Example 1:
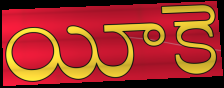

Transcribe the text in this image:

యీకె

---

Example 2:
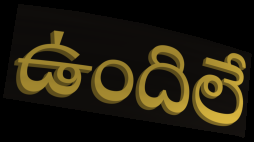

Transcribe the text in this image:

ఉందిలే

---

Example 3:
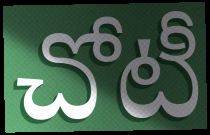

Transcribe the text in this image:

చోటీ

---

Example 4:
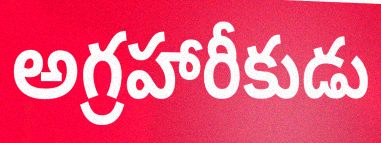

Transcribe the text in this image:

అగ్రహారీకుడు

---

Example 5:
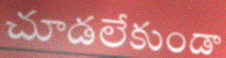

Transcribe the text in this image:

చూడలేకుండా